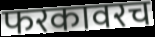
फरकावरच